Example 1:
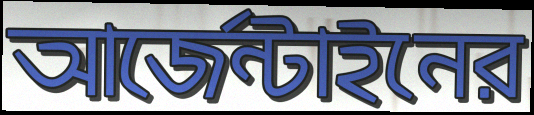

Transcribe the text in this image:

আর্জেন্টাইনের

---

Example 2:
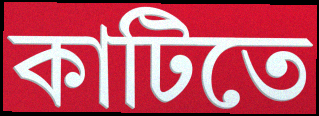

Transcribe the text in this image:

কাটিতে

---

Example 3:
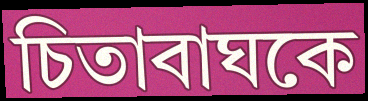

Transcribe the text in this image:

চিতাবাঘকে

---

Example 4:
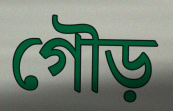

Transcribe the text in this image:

গৌড়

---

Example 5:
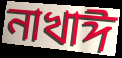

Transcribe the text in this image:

নাখাঈ